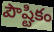
పౌష్టికం